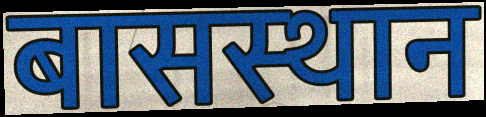
बासस्थान